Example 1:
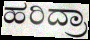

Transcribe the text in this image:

ಹರಿದ್ರಾ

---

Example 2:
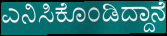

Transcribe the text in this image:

ಎನಿಸಿಕೊಂಡಿದ್ದಾನೆ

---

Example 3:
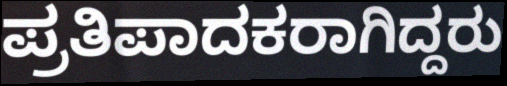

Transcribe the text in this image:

ಪ್ರತಿಪಾದಕರಾಗಿದ್ದರು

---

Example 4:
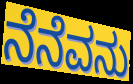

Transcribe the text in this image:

ನೆನೆವನು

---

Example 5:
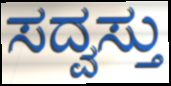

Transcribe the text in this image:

ಸದ್ವಸ್ತು